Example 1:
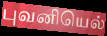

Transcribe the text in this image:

புவனியெல்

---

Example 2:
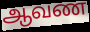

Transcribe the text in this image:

ஆவண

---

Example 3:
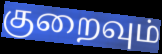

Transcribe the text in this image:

குறைவும்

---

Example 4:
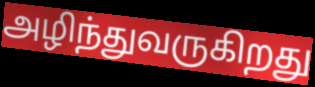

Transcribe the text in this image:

அழிந்துவருகிறது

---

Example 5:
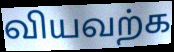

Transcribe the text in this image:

வியவற்க